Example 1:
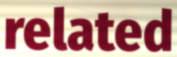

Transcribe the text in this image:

related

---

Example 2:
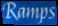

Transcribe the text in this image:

Ramps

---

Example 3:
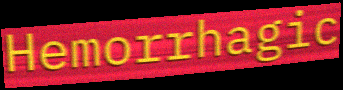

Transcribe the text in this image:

Hemorrhagic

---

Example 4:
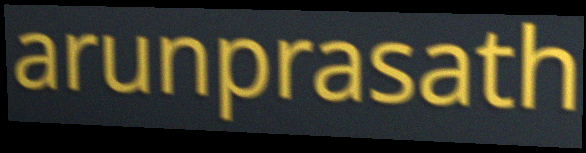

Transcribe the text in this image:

arunprasath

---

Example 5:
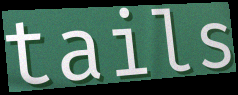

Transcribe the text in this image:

tails